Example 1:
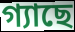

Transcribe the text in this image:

গ্যাছে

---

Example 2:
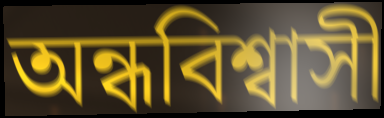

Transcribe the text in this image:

অন্ধবিশ্বাসী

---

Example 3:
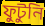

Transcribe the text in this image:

ফুটুনি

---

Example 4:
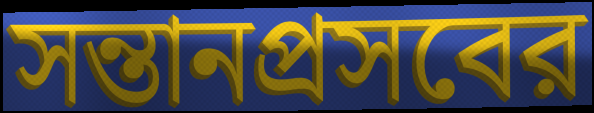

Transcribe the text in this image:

সন্তানপ্রসবের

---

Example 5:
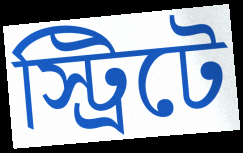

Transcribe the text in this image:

স্ট্রিটে